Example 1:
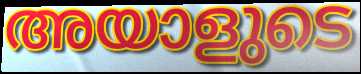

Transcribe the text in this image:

അയാളുടെ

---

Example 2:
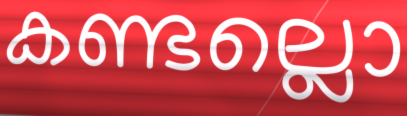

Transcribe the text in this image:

കണ്ടല്ലൊ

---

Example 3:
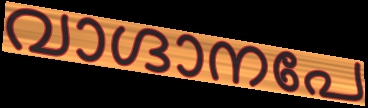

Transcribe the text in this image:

വാഗ്ദാനപേ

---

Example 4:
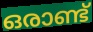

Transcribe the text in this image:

ഒരാണ്ട്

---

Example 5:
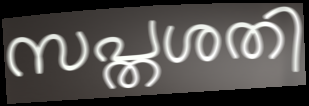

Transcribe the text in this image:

സപ്തശതി